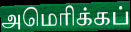
அமெரிக்கப்